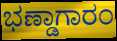
ಭಣ್ಡಾಗಾರಂ